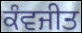
ਕੰਵਜੀਤ